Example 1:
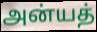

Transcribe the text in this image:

அன்யத்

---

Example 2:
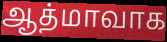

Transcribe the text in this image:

ஆத்மாவாக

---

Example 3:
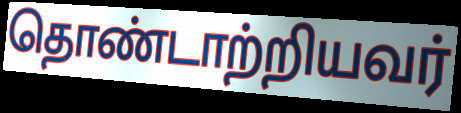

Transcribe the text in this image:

தொண்டாற்றியவர்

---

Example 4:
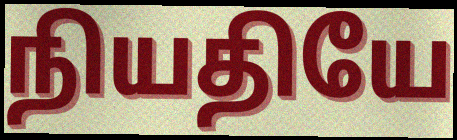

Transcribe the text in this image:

நியதியே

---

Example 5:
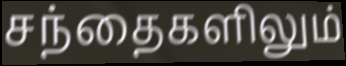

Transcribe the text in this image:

சந்தைகளிலும்